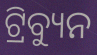
ଟ୍ରିବ୍ୟୁନ